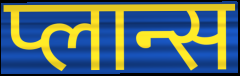
प्‍लान्‍स